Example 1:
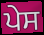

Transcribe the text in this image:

ਪੇਸ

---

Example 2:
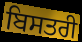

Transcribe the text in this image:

ਬਿਸਤਰੀ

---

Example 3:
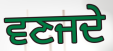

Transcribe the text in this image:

ਵਣਜਦੇ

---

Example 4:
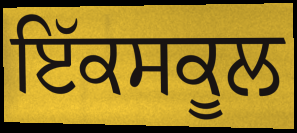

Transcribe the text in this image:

ਇੱਕਸਕੂਲ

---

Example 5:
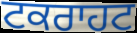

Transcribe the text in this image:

ਟਕਰਾਹਟ